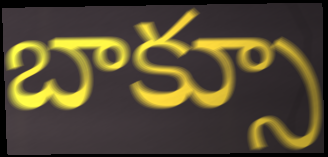
బాక్సూ